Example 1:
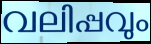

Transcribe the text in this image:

വലിപ്പവും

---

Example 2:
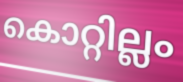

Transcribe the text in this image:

കൊറ്റില്ലം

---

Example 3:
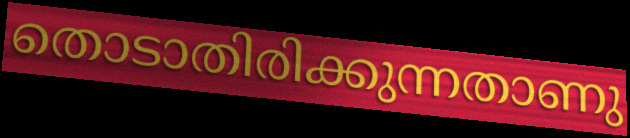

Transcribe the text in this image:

തൊടാതിരിക്കുന്നതാണു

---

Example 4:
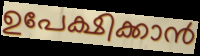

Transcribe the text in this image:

ഉപേക്ഷിക്കാൻ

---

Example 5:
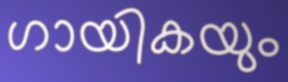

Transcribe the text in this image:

ഗായികയും